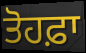
ਤੋਹਫ਼ਾ